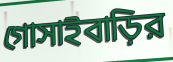
গোসাইবাড়ির